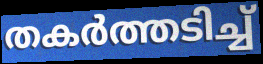
തകർത്തടിച്ച്